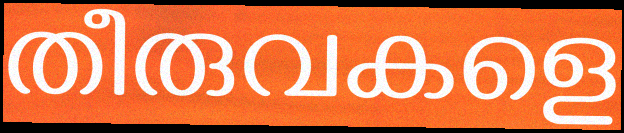
തീരുവകളെ